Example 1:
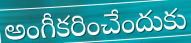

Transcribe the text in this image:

అంగీకరించేందుకు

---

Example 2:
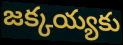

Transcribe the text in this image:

జక్కయ్యకు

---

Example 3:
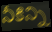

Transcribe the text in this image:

నీకిన్ని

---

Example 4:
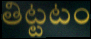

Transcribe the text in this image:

తిట్టటం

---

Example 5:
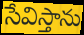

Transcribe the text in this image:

సేవిస్తాను